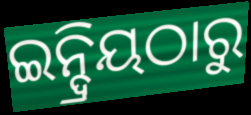
ଇନ୍ଦ୍ରିୟଠାରୁ